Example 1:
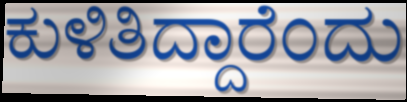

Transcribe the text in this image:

ಕುಳಿತಿದ್ದಾರೆಂದು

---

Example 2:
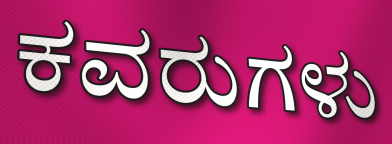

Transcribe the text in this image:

ಕವರುಗಳು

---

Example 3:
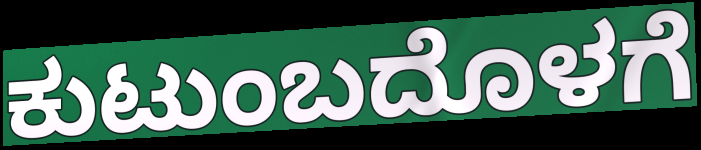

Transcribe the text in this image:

ಕುಟುಂಬದೊಳಗೆ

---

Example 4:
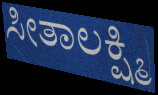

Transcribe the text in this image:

ಸೀತಾಲಕ್ಷ್ಮಿ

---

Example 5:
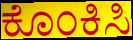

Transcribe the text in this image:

ಕೊಂಕಿಸಿ